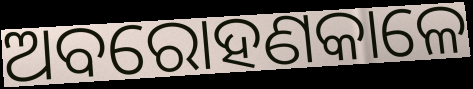
ଅବରୋହଣକାଳେ